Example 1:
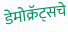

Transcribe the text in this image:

डेमोक्रॅट्सचे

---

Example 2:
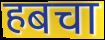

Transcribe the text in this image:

हबचा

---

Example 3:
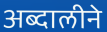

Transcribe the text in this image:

अब्दालीने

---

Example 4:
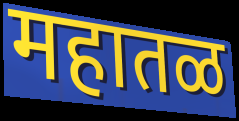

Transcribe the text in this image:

महातळ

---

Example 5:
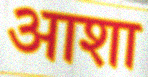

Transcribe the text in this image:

आशा